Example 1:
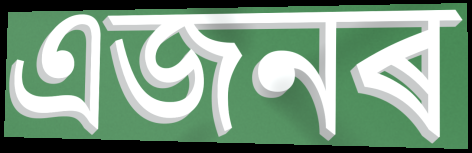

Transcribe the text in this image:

এজনৰ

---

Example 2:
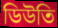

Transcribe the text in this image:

ডিউতি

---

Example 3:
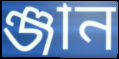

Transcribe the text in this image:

ঞ্জান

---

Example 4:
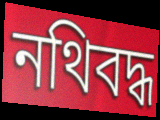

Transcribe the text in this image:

নথিবদ্ধ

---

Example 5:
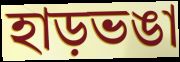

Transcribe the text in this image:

হাড়ভঙা